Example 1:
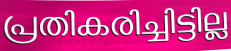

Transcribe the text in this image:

പ്രതികരിച്ചിട്ടില്ല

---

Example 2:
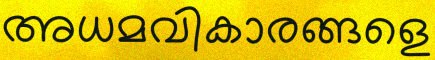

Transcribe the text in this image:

അധമവികാരങ്ങളെ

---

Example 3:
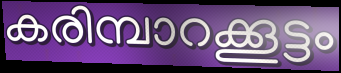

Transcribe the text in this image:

കരിമ്പാറക്കൂട്ടം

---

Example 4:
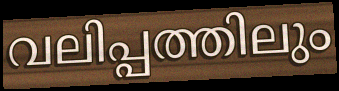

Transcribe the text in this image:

വലിപ്പത്തിലും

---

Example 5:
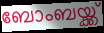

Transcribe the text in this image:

ബോംബയ്ക്ക്